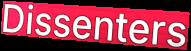
Dissenters